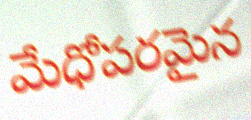
మేధోపరమైన